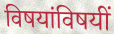
विषयांविषयीं